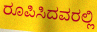
ರೂಪಿಸಿದವರಲ್ಲಿ